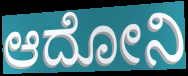
ಆದೋನಿ